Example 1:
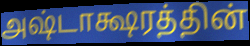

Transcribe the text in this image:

அஷ்டாக்ஷரத்தின்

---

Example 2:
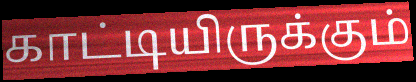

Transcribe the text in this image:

காட்டியிருக்கும்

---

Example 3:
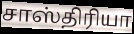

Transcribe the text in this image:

சாஸ்திரியா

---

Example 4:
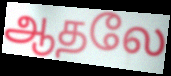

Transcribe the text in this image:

ஆதலே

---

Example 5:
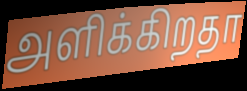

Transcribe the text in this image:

அளிக்கிறதா